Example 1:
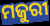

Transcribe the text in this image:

ମଜୁରୀ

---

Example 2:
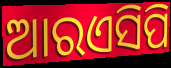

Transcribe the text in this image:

ଆରଏସିପି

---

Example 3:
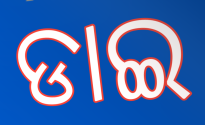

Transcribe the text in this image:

ଡାଇ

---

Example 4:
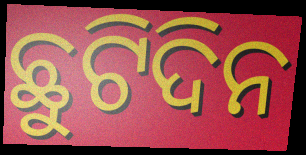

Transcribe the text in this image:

ଛୁଟିଦିନ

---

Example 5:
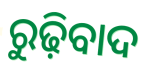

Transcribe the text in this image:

ରୁଢ଼ିବାଦ